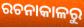
ରଚନାକାଳରୁ